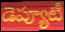
డెప్యూటీ